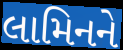
લામિનને